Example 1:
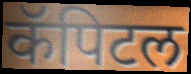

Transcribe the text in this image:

कॅपिटल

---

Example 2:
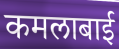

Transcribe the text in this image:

कमलाबाई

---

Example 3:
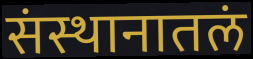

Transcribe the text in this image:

संस्थानातलं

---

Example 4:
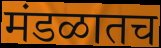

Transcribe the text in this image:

मंडळातच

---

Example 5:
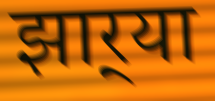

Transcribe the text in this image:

झार्या